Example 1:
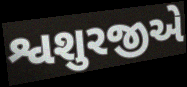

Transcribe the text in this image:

શ્વશુરજીએ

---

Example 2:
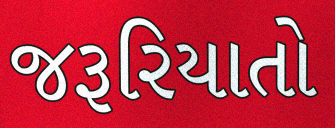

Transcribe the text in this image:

જરૂરિયાતો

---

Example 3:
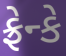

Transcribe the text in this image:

ફ્રેન્કે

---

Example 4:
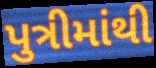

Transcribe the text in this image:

પુત્રીમાંથી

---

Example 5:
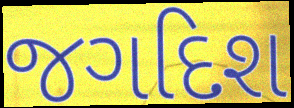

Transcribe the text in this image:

જગદિશ